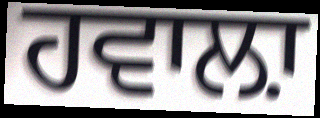
ਹਵਾਲ਼ਾ